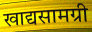
खाद्यसामग्री